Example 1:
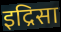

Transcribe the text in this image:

इद्रिसा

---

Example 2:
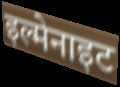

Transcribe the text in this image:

इल्मेनाइट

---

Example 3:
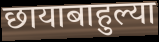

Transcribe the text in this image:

छायाबाहुल्या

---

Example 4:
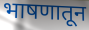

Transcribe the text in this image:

भाषणातून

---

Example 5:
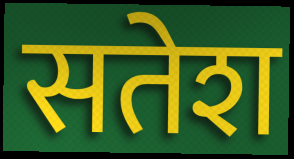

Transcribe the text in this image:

सतेश